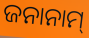
ଜନାନାମ୍